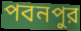
পবনপুর